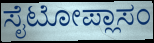
ಸೈಟೋಪ್ಲಾಸಂ